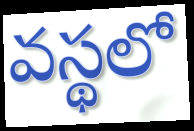
వస్థలో